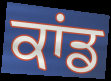
ਕਾਂਡ